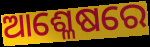
ଆଶ୍ଳେଷରେ